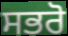
ਸਭਰੋ